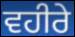
ਵਹੀਰੇ